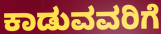
ಕಾಡುವವರಿಗೆ